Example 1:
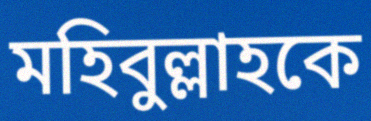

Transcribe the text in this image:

মহিবুল্লাহকে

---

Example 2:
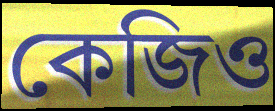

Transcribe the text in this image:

কেজিও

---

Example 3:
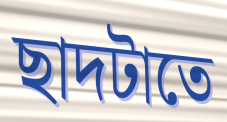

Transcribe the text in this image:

ছাদটাতে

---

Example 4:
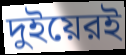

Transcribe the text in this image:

দুইয়েরই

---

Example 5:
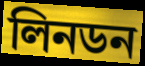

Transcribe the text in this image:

লিনডন